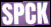
SPCK